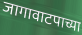
जागावाटपाच्या